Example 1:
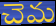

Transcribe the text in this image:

చెమ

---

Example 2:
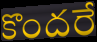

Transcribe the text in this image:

కొందరే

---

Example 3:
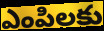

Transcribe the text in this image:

ఎంపిలకు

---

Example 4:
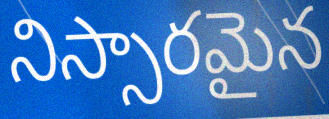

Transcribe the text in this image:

నిస్సారమైన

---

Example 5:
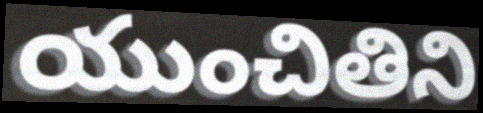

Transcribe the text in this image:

యుంచితిని